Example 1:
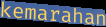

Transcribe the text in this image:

kemarahan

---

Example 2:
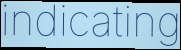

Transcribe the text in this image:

indicating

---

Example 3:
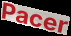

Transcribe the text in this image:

Pacer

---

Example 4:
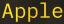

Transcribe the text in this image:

Apple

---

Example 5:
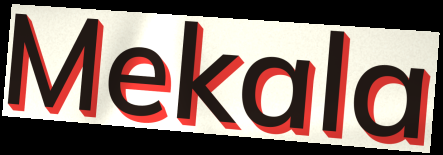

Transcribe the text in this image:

Mekala